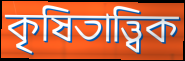
কৃষিতাত্ত্বিক